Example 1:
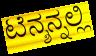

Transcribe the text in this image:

ಟೆನ್ಶನ್ನಲ್ಲಿ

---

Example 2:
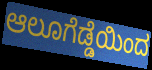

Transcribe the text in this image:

ಆಲೂಗೆಡ್ಡೆಯಿಂದ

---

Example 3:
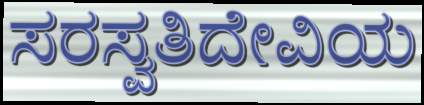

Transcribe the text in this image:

ಸರಸ್ವತಿದೇವಿಯ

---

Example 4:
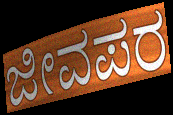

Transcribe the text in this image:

ಜೀವಪರ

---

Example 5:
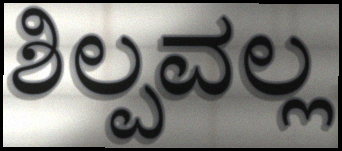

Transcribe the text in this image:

ಶಿಲ್ಪವಲ್ಲ